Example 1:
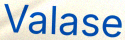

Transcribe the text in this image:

Valase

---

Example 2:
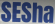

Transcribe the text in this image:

SESha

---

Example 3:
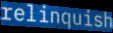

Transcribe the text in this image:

relinquish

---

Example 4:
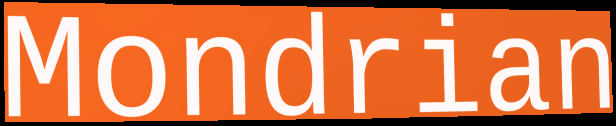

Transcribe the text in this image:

Mondrian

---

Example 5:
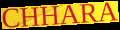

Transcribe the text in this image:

CHHARA